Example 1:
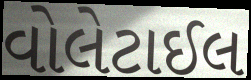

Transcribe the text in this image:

વોલેટાઈલ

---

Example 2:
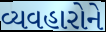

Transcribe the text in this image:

વ્યવહારોને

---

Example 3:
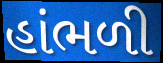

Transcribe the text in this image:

હાંભળી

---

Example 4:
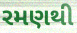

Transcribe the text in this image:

રમણથી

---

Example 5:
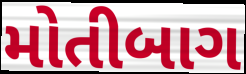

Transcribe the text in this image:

મોતીબાગ